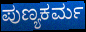
ಪುಣ್ಯಕರ್ಮ